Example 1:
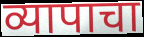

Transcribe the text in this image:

व्यापाचा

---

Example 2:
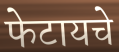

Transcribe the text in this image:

फेटायचे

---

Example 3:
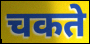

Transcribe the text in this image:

चकते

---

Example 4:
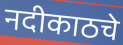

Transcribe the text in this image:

नदीकाठचे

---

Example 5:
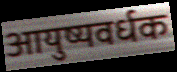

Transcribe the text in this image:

आयुष्यवर्धक